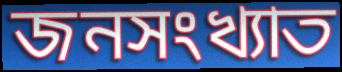
জনসংখ্যাত